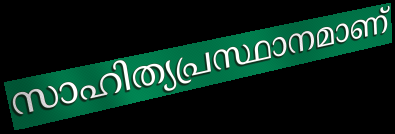
സാഹിത്യപ്രസ്ഥാനമാണ്